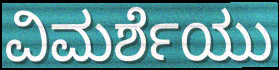
ವಿಮರ್ಶೆಯು